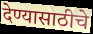
देण्यासाठीचे